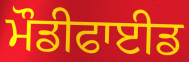
ਮੌਡੀਫਾਈਡ